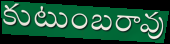
కుటుంబరావు